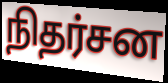
நிதர்சன